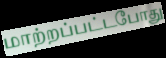
மாற்றப்பட்டபோது